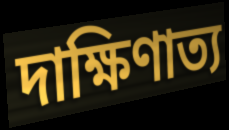
দাক্ষিণাত্য